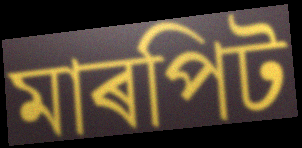
মাৰপিট